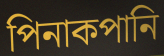
পিনাকপানি